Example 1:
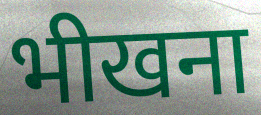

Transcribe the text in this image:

भीखना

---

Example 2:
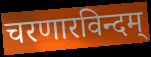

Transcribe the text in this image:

चरणारविन्दम्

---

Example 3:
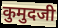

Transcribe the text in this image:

कुमुदजी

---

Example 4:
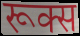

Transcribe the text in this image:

रूक्स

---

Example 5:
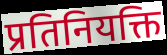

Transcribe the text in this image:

प्रतिनियक्ति